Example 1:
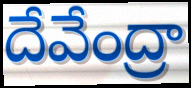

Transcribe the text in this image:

దేవేంద్రా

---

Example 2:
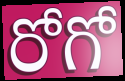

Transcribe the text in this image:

రోగో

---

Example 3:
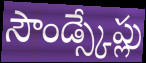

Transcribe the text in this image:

సౌండ్స్కేప్లు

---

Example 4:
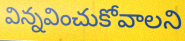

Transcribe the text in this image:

విన్నవించుకోవాలని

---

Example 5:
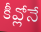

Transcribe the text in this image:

కీవ్లోనే